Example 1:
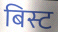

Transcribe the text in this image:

बिस्ट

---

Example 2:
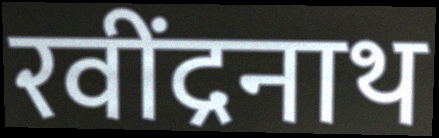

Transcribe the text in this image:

रवींद्रनाथ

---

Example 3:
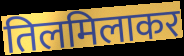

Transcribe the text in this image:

तिलमिलाकर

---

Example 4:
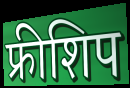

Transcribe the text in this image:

फ्रीशिप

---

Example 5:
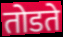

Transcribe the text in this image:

तोडते